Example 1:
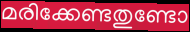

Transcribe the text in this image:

മരിക്കേണ്ടതുണ്ടോ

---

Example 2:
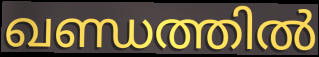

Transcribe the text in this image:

ഖണ്ഡത്തിൽ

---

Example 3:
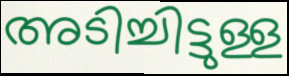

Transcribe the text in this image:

അടിച്ചിട്ടുള്ള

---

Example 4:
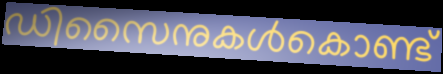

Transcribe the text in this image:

ഡിസൈനുകൾകൊണ്ട്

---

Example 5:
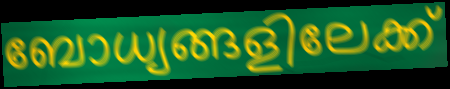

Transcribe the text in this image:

ബോധ്യങ്ങളിലേക്ക്